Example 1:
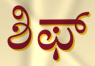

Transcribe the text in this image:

ಶಿಫ್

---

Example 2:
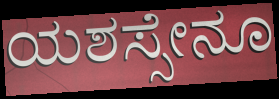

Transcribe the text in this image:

ಯಶಸ್ಸೇನೂ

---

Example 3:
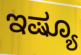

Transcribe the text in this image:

ಇಷ್ಯೂ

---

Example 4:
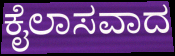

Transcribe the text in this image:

ಕೈಲಾಸವಾದ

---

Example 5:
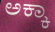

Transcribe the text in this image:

ಅಕ್ಕಾ